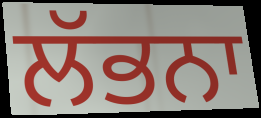
ਲੱਭਨਾ